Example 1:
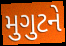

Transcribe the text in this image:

મુગુટને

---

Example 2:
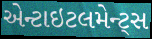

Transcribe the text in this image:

એન્ટાઇટલમેન્ટ્સ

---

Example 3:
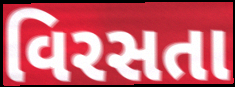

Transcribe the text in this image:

વિરસતા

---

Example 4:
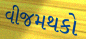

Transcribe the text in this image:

વીજમથકો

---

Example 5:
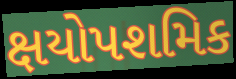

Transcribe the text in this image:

ક્ષયોપશમિક